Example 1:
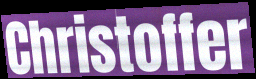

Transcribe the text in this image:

Christoffer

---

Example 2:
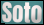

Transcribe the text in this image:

Soto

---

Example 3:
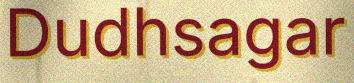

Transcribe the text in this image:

Dudhsagar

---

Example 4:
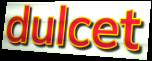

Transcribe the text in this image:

dulcet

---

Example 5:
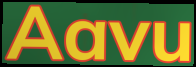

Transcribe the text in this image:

Aavu